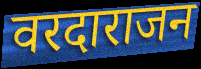
वरदाराजन